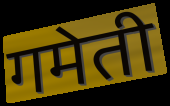
गमेती